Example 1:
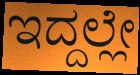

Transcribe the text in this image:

ಇದ್ದಲ್ಲೇ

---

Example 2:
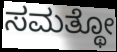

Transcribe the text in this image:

ಸಮತ್ಥೋ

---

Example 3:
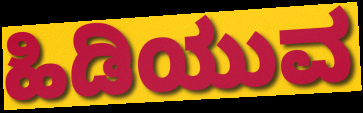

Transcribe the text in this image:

ಹಿಡಿಯುವ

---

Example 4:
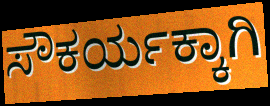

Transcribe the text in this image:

ಸೌಕರ್ಯಕ್ಕಾಗಿ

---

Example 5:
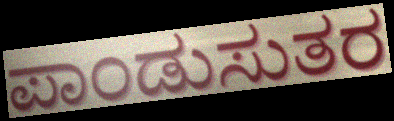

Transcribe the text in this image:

ಪಾಂಡುಸುತರ